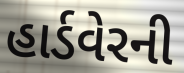
હાર્ડવેરની